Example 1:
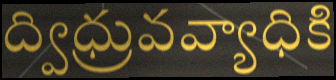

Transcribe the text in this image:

ద్విధ్రువవ్యాధికి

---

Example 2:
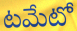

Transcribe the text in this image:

టమేటో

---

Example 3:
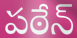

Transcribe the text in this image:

పఠేన్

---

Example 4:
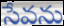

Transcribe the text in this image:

సేవను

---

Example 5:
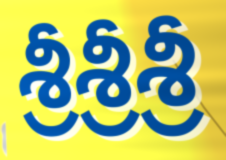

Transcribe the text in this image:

శ్రీశ్రీశ్రీ